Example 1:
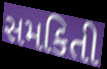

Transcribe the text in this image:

સમકિતી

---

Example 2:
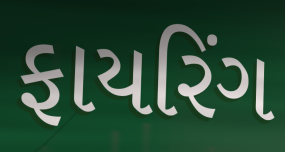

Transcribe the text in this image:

ફાયરિંગ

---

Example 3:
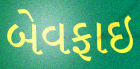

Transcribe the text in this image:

બેવફાઇ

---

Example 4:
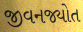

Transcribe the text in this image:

જીવનજ્યોત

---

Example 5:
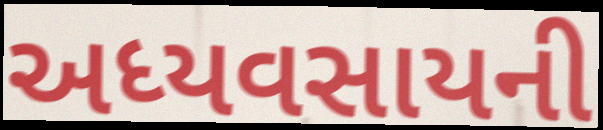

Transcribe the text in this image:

અધ્યવસાયની